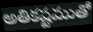
అతికష్టముతో